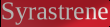
Syrastrene